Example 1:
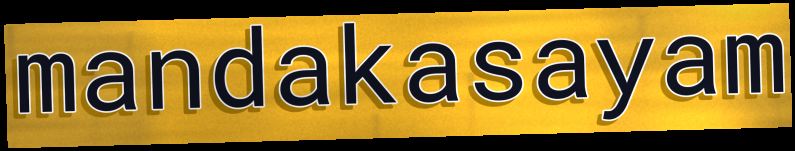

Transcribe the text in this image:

mandakasayam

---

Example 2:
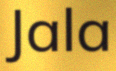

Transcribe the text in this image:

Jala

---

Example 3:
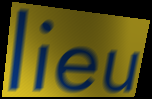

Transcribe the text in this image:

lieu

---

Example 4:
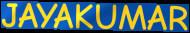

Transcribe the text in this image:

JAYAKUMAR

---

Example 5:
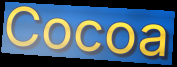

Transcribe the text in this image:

Cocoa